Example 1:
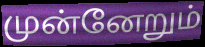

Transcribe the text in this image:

முன்னேறும்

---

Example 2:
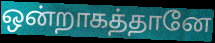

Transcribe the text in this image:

ஒன்றாகத்தானே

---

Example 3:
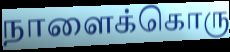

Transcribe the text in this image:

நாளைக்கொரு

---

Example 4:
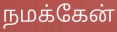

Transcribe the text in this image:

நமக்கேன்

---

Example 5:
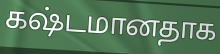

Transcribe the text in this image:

கஷ்டமானதாக